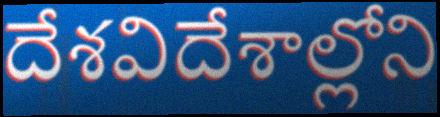
దేశవిదేశాల్లోని